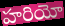
హరియో